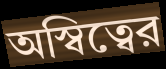
অস্বিত্বের